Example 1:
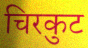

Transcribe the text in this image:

चिरकुट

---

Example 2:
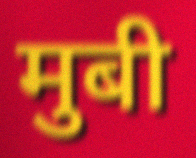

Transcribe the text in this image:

मुबी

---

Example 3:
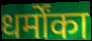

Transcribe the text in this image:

धर्मोंका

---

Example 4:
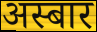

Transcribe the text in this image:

अस्बार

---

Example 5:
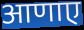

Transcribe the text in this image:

आणाए